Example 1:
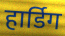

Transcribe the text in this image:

हार्डिग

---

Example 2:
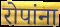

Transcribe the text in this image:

रोपांना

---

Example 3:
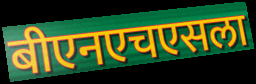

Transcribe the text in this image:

बीएनएचएसला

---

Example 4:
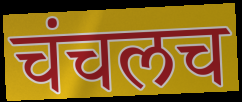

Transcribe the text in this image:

चंचलच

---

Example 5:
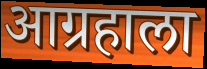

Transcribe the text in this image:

आग्रहाला